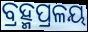
ବ୍ରହ୍ମପ୍ରଳୟ